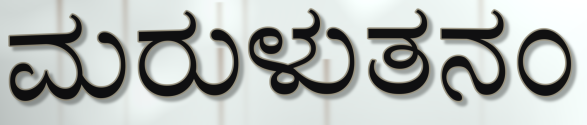
ಮರುಳುತನಂ